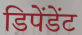
डिपेंडेंट